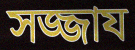
সজ্জায